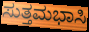
ಸುತ್ತಮಭಾಸಿ